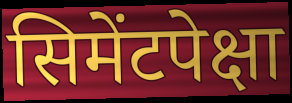
सिमेंटपेक्षा